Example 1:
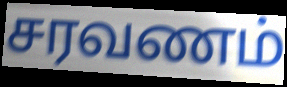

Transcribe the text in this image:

சரவணம்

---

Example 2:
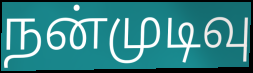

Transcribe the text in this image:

நன்முடிவு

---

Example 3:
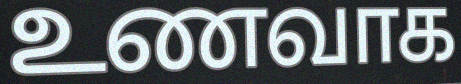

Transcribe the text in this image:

உணவாக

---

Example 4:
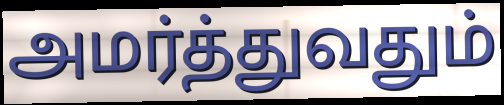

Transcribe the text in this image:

அமர்த்துவதும்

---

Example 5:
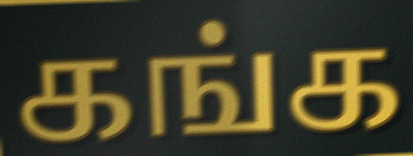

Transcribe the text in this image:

கங்க